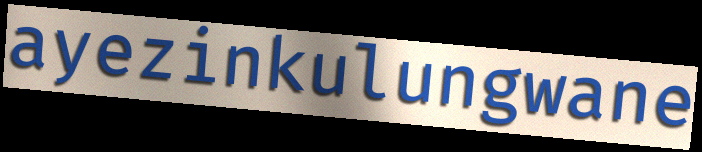
ayezinkulungwane